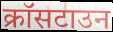
क्रॉसटाउन